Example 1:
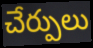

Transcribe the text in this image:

చేర్పులు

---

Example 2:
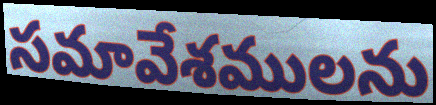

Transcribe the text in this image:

సమావేశములను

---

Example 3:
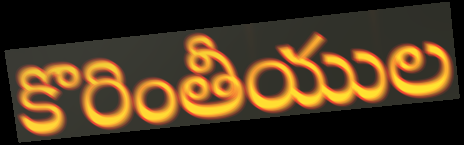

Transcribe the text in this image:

కొరింతీయుల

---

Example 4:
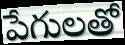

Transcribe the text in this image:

పేగులతో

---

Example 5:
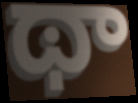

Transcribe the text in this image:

థా